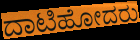
ದಾಟಿಹೋದರು